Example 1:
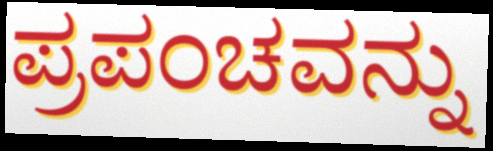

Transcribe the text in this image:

ಪ್ರಪಂಚವನ್ನು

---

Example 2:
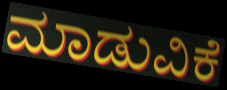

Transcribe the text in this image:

ಮಾಡುವಿಕೆ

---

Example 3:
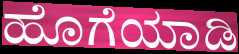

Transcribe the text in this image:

ಹೊಗೆಯಾಡಿ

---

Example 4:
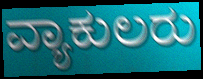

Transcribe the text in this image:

ವ್ಯಾಕುಲರು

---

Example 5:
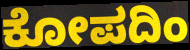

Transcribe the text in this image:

ಕೋಪದಿಂ